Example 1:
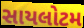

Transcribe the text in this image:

સાયલોટમ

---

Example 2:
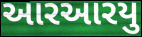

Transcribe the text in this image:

આરઆરયુ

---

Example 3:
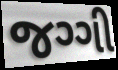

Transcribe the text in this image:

જગ્ગી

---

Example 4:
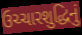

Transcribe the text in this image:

ઉચ્ચારશુદ્ધિનું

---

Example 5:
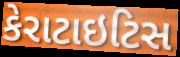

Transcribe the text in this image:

કેરાટાઇટિસ